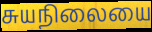
சுயநிலையை